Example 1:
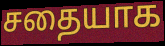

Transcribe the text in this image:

சதையாக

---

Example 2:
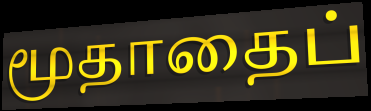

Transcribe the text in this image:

மூதாதைப்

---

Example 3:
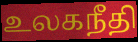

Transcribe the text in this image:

உலகநீதி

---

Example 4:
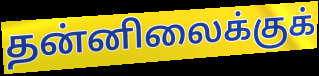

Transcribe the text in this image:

தன்னிலைக்குக்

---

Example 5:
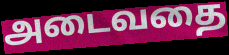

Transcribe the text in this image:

அடைவதை